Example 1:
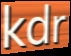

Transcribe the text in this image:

kdr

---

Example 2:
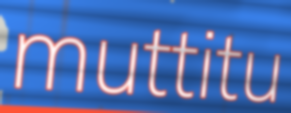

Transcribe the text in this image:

muttitu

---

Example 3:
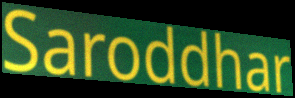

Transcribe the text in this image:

Saroddhar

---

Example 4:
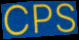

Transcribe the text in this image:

CPS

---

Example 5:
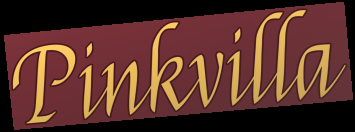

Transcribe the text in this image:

Pinkvilla